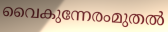
വൈകുന്നേരംമുതൽ